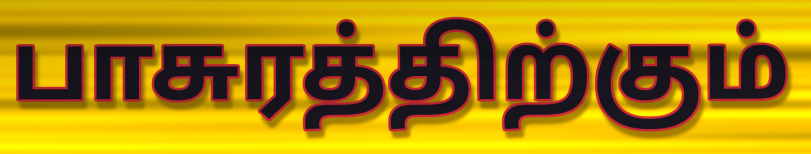
பாசுரத்திற்கும்